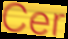
Cer